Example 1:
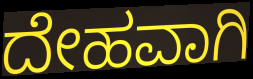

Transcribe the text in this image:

ದೇಹವಾಗಿ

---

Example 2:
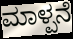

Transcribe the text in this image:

ಮಾಳ್ಪನೆ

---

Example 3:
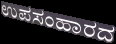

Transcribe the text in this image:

ಉಪಸಂಹಾರದ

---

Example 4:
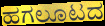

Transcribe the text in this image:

ಹಗಲೂಟದ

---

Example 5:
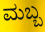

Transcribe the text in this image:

ಮಬ್ಬ